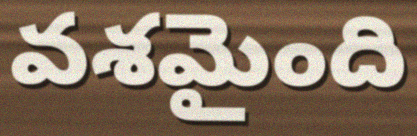
వశమైంది